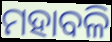
ମହାବଳି